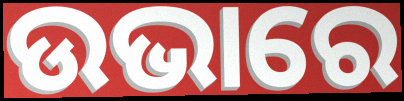
ଉଭାରେ